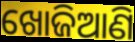
ଖୋଜିଆଣି